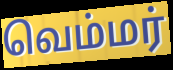
வெம்மர்